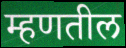
म्हणतील